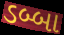
ડબ્બા